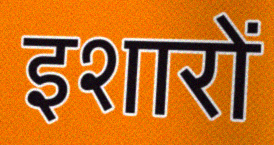
इशारों